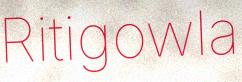
Ritigowla